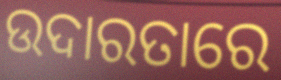
ଉଦାରତାରେ